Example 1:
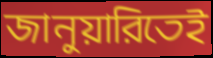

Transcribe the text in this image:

জানুয়ারিতেই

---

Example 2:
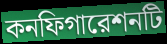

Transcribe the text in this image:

কনফিগারেশনটি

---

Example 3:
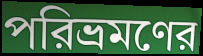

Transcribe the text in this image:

পরিভ্রমণের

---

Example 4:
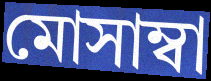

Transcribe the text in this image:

মোসাম্বা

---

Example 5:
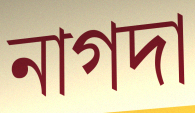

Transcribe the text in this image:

নাগদা